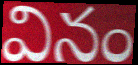
వినం